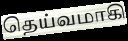
தெய்வமாகி